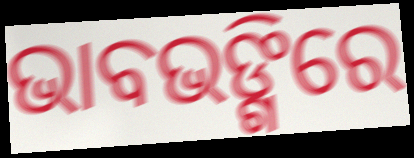
ଭାବଭଙ୍ଗିରେ